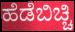
ಹೆಡೆಬಿಚ್ಚಿ